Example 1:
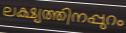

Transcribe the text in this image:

ലക്ഷ്യത്തിനപ്പുറം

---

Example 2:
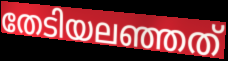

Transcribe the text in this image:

തേടിയലഞ്ഞത്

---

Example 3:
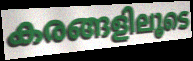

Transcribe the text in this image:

കരങ്ങളിലൂടെ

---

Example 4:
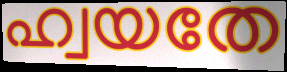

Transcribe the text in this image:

ഹ്വയതേ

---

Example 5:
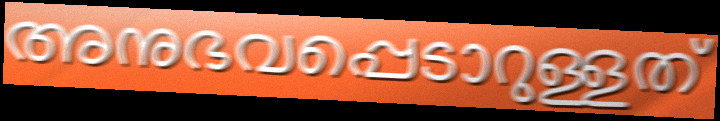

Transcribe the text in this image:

അനുഭവപ്പെടാറുള്ളത്